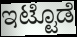
ಇಟ್ಟೊಡೆ